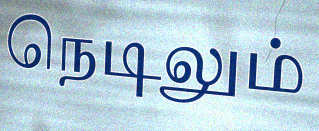
நெடிலும்